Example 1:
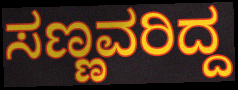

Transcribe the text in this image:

ಸಣ್ಣವರಿದ್ದ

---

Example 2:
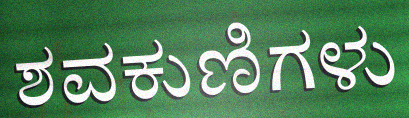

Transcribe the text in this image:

ಶವಕುಣಿಗಳು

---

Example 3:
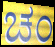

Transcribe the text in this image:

ಚಂ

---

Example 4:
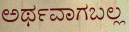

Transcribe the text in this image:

ಅರ್ಥವಾಗಬಲ್ಲ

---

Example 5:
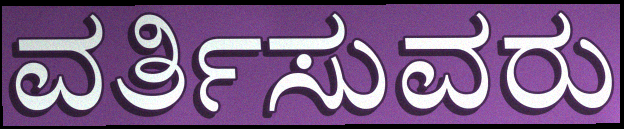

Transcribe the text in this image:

ವರ್ತಿಸುವರು